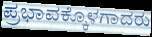
ಪ್ರಭಾವಕ್ಕೊಳಗಾದರು